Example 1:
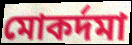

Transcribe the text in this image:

মোকৰ্দমা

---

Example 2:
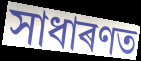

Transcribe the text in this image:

সাধাৰণত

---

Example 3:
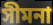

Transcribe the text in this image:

সীমনা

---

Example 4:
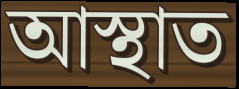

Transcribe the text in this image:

আস্থাত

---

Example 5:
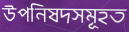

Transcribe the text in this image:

উপনিষদসমূহত